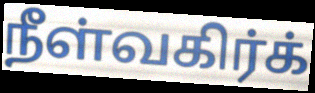
நீள்வகிர்க்